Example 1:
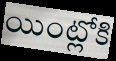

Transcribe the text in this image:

యింట్లోకి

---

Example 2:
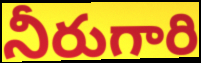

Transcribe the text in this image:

నీరుగారి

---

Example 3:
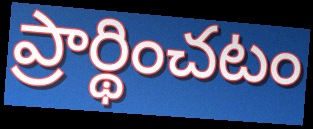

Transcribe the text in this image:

ప్రార్థించటం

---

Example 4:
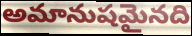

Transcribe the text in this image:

అమానుషమైనది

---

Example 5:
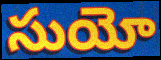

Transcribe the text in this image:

సుయో